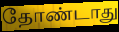
தோண்டாது